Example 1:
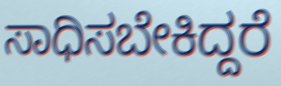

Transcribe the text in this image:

ಸಾಧಿಸಬೇಕಿದ್ದರೆ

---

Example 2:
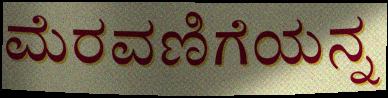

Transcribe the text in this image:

ಮೆರವಣಿಗೆಯನ್ನ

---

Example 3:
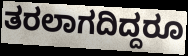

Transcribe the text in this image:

ತರಲಾಗದಿದ್ದರೂ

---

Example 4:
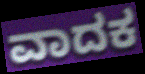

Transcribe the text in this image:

ವಾದಕ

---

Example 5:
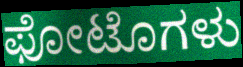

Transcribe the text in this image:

ಫೋಟೊಗಳು